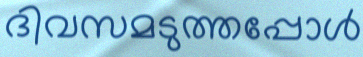
ദിവസമടുത്തപ്പോൾ